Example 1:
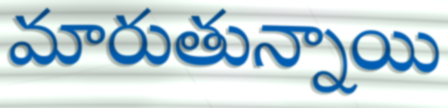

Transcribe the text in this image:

మారుతున్నాయి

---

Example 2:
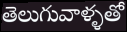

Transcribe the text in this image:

తెలుగువాళ్ళతో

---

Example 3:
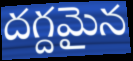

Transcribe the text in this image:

దగ్దమైన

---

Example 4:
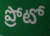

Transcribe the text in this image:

ప్రోటో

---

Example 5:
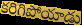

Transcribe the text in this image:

కరిగిపోయాడు